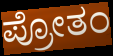
ಪ್ರೋತಂ